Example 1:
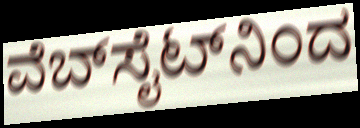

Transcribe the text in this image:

ವೆಬ್‍ಸೈಟ್‍ನಿಂದ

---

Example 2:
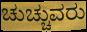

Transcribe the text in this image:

ಚುಚ್ಚುವರು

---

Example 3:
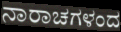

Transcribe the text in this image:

ನಾರಾಚಗಳಂದ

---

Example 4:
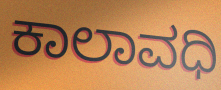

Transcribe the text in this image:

ಕಾಲಾವಧಿ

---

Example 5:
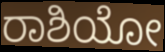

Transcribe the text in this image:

ರಾಶಿಯೋ